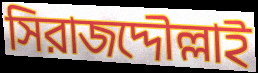
সিরাজদ্দৌল্লাই